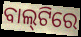
ବାଲ୍‌ଟିରେ